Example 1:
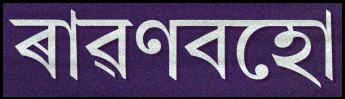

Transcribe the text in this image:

ৰাৱণবহো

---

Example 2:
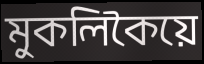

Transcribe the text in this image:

মুকলিকৈয়ে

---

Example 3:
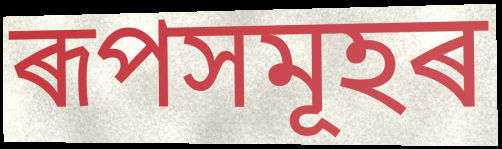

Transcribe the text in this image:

ৰূপসমূহৰ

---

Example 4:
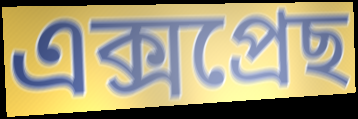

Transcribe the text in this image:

এক্সপ্ৰেছ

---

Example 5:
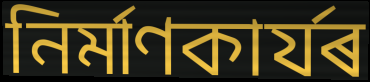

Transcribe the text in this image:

নিৰ্মাণকাৰ্যৰ